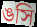
ঙসি